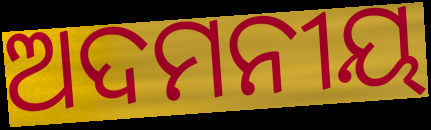
ଅଦମନୀୟ